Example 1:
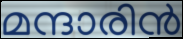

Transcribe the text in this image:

മന്ദാരിൻ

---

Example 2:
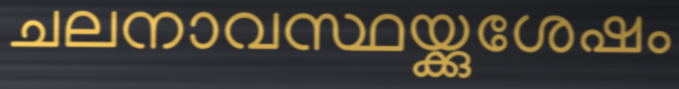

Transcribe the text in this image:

ചലനാവസ്ഥയ്ക്കുശേഷം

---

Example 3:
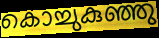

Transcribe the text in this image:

കൊച്ചുകുഞ്ഞു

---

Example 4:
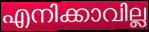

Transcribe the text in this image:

എനിക്കാവില്ല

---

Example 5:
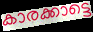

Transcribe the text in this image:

കാരക്കാട്ടെ